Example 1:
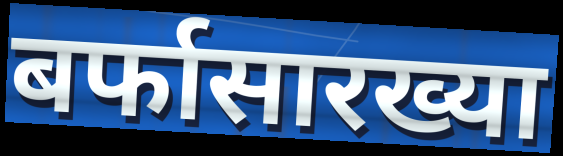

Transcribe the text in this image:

बर्फासारख्या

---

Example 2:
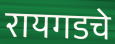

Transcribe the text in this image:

रायगडचे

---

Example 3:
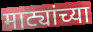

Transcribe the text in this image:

माट्यांच्या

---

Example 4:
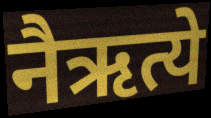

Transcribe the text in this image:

नैऋत्ये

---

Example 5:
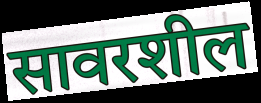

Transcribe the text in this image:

सावरशील